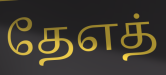
தேஎத்